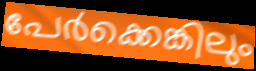
പേർക്കെങ്കിലും